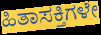
ಹಿತಾಸಕ್ತಿಗಳೇ